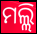
ମଲ୍ଲି